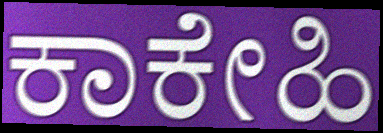
ಕಾಕೇಹಿ